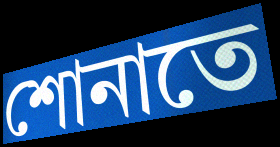
শোনাতে